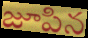
జూపిన